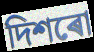
দিশৰো